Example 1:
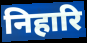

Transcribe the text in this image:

निहारि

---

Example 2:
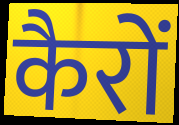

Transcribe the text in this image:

कैरों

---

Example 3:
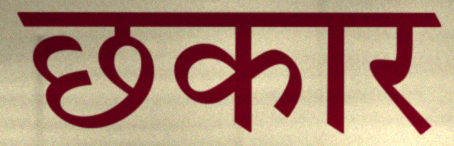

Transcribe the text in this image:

छकार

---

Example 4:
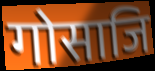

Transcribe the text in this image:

गोसाजि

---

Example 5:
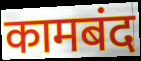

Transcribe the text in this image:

कामबंद